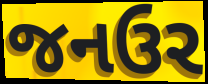
જનઉર